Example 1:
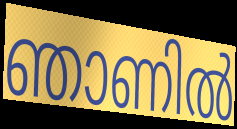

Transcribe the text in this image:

ഞാണിൽ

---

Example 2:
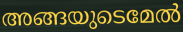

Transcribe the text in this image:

അങ്ങയുടെമേൽ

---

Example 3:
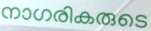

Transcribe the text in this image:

നാഗരികരുടെ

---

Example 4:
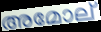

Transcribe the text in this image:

അമോല്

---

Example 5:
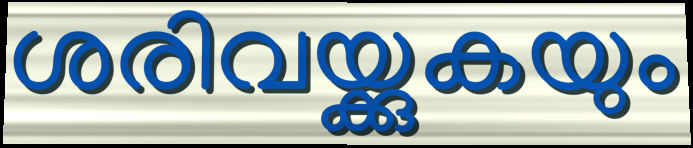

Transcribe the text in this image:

ശരിവയ്ക്കുകയും